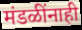
मंडळींनाही